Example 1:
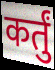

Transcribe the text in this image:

कर्तुं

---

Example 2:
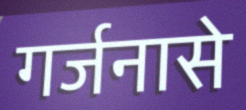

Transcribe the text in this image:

गर्जनासे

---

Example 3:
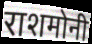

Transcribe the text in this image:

राशमोनी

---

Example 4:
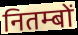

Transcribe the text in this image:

नितम्बों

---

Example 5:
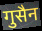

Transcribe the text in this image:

गुसैन